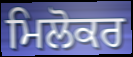
ਮਿਲੋਕਰ